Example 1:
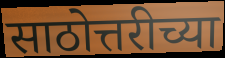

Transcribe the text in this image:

साठोत्तरीच्या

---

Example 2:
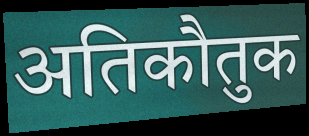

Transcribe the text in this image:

अतिकौतुक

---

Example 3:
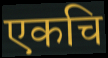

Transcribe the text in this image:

एकचि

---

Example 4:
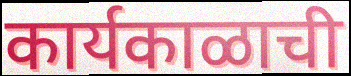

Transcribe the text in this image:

कार्यकाळाची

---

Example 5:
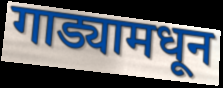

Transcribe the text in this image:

गाड्यामधून